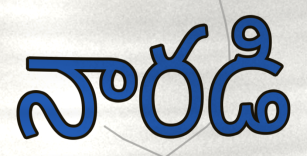
నారడి